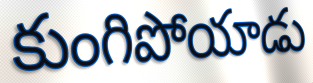
కుంగిపోయాడు